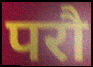
परौ